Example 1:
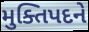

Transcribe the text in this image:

મુક્તિપદને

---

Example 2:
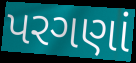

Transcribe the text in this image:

પરગણાં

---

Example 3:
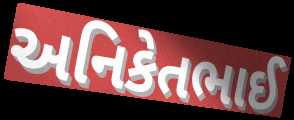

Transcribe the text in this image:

અનિકેતભાઈ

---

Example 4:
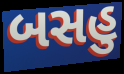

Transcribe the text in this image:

બસહુ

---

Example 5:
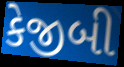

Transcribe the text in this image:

કેજીબી